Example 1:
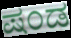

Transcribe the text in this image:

ಷಂಡ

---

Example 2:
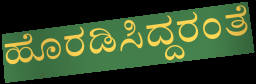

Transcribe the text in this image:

ಹೊರಡಿಸಿದ್ದರಂತೆ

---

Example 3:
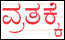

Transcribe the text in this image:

ವ್ರತಕ್ಕೆ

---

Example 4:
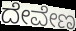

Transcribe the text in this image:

ದೇವೇಣ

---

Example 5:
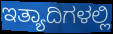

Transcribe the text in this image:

ಇತ್ಯಾದಿಗಳಲ್ಲಿ